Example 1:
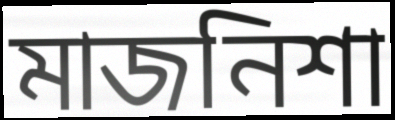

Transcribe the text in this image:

মাজনিশা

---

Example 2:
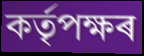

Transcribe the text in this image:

কৰ্তৃপক্ষৰ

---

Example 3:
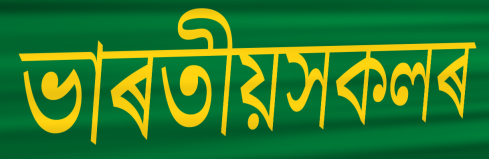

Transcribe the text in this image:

ভাৰতীয়সকলৰ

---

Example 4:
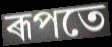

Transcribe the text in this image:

ৰূপতে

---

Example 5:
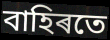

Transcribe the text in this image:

বাহিৰতে